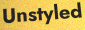
Unstyled